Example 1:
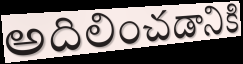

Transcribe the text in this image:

అదిలించడానికి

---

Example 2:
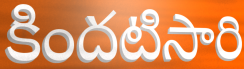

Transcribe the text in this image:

కిందటిసారి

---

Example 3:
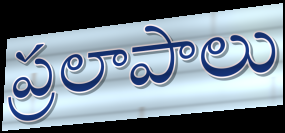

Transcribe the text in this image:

ప్రలాపాలు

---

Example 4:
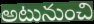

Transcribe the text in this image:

అటునుంచి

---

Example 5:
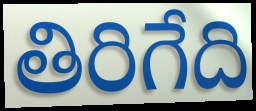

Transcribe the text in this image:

తిరిగేది